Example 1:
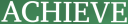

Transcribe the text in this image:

ACHIEVE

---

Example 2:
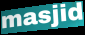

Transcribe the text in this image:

masjid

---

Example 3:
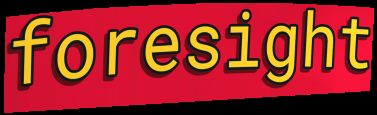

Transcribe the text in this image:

foresight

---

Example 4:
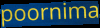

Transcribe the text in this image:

poornima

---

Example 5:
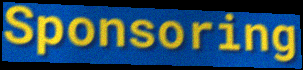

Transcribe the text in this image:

Sponsoring